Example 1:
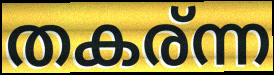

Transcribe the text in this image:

തകര്ന്ന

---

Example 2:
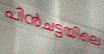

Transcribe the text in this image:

പിൻചട്ടയിലെ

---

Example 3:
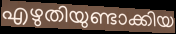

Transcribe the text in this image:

എഴുതിയുണ്ടാക്കിയ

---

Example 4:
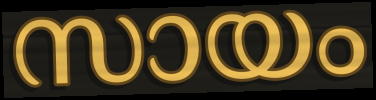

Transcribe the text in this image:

സായം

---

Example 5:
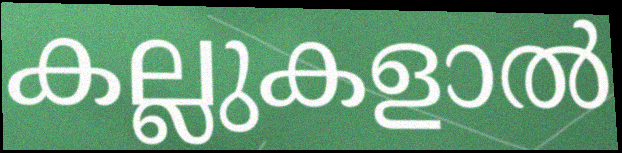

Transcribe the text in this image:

കല്ലുകളാൽ